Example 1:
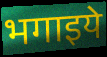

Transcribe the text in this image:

भगाइये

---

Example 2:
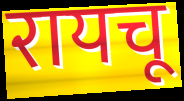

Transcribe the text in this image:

रायचू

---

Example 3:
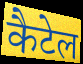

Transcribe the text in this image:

कैटेल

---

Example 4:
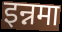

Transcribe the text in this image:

इन्नमा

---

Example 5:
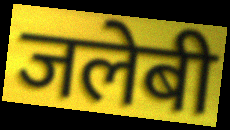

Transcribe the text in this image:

जलेबी